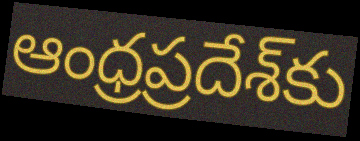
ఆంధ్రప్రదేశ్‌కు